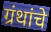
ग्रंथांचे